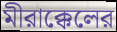
মীরাক্কেলের